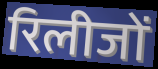
रिलीजों